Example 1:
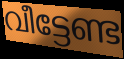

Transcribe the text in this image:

വീട്ടേണ്ട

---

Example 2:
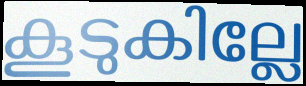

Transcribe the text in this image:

കൂടുകില്ലേ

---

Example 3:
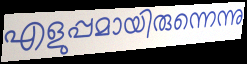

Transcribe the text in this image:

എളുപ്പമായിരുന്നെന്നു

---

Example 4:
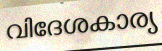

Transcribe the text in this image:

വിദേശകാര്യ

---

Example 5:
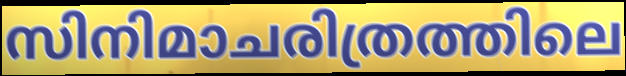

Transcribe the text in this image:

സിനിമാചരിത്രത്തിലെ